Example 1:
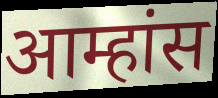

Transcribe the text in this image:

आम्हांस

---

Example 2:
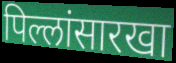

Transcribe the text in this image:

पिल्लांसारखा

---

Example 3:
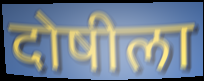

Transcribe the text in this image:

दोषीला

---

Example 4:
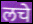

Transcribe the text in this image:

लचे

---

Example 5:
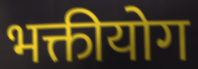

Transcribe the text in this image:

भक्तीयोग